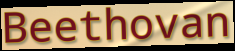
Beethovan